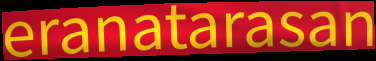
eranatarasan